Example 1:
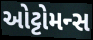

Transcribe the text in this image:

ઓટ્ટોમન્સ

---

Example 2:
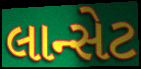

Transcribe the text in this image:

લાન્સેટ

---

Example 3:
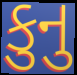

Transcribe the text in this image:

કુનુ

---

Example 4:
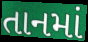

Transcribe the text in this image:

તાનમાં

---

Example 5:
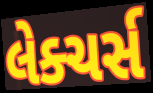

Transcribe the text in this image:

લેક્ચર્સ